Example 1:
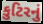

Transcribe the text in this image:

કુટિરનું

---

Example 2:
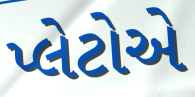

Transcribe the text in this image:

પ્લેટોએ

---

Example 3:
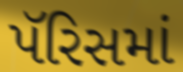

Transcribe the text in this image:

પૅરિસમાં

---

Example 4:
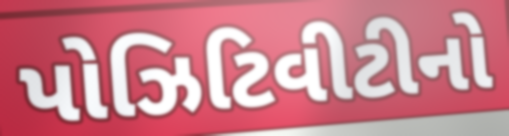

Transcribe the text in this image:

પોઝિટિવીટીનો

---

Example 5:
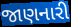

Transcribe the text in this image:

જાણનારી